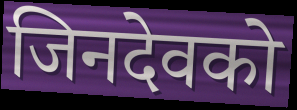
जिनदेवको